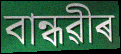
বান্ধৱীৰ